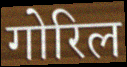
गोरिल